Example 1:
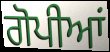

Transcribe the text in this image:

ਗੋਪੀਆਂ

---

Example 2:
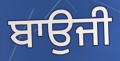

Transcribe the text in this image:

ਬਾਉਜੀ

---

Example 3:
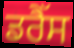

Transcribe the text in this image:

ਡਰੈੱਸ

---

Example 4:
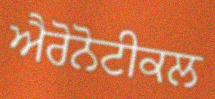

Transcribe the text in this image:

ਐਰੋਨੋਟੀਕਲ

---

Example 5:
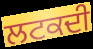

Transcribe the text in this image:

ਲਟਕਦੀ